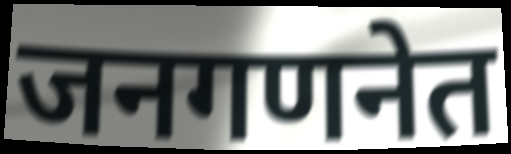
जनगणनेत